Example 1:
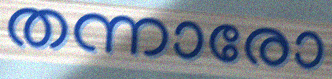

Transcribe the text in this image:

തന്നാരോ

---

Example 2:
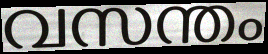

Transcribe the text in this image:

വസന്തം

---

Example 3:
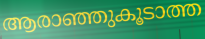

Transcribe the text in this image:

ആരാഞ്ഞുകൂടാത്ത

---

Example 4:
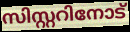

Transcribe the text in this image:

സിസ്റ്ററിനോട്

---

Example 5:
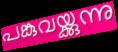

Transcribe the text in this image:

പങ്കുവയ്ക്കുന്നു